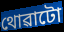
থোৱাটো